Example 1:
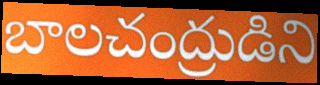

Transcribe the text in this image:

బాలచంద్రుడిని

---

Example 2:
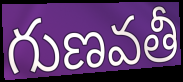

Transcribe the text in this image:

గుణవతీ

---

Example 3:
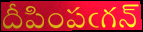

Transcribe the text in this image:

దీపింపఁగన్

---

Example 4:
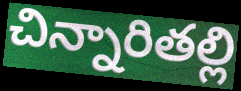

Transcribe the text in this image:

చిన్నారితల్లి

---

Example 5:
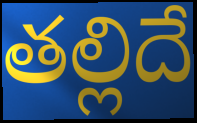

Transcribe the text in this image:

తల్లిదే